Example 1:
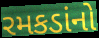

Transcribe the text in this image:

રમકડાંનો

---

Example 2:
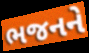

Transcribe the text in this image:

ભજનને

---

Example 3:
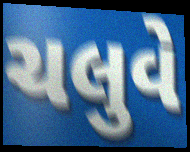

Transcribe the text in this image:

ચલુવે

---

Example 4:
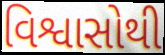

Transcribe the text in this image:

વિશ્વાસોથી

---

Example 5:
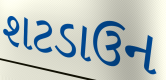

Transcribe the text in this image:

શટડાઉન